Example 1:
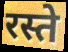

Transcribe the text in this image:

रस्ते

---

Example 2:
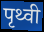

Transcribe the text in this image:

पृथ्वी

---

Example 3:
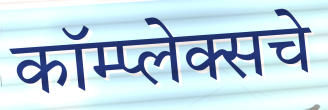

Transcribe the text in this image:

कॉम्प्लेक्सचे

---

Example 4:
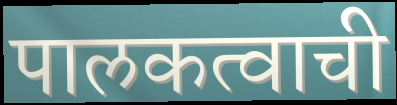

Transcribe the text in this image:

पालकत्वाची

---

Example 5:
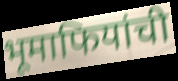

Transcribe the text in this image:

भूमाफियांची